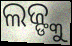
ଲଜ୍ଙ୍କୁ